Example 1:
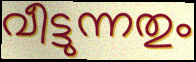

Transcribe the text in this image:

വീട്ടുന്നതും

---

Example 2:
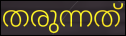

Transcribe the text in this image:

തരുന്നത്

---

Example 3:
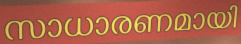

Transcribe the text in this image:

സാധാരണമായി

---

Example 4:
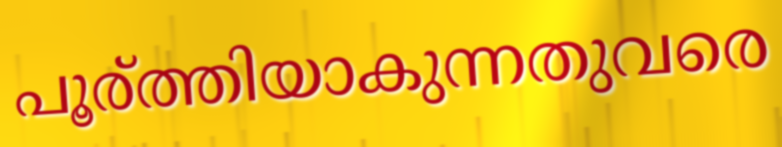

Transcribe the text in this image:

പൂര്ത്തിയാകുന്നതുവരെ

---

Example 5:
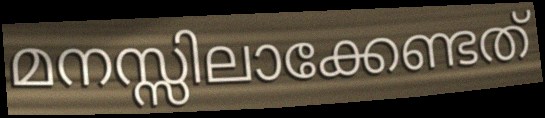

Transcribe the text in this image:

മനസ്സിലാക്കേണ്ടത്